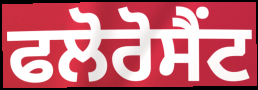
ਫਲੋਰੋਸੈਂਟ